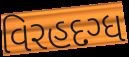
વિરહદગ્ધ